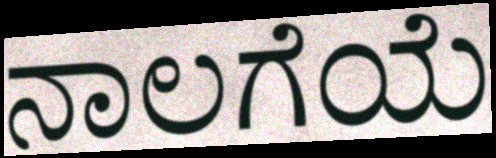
ನಾಲಗೆಯೆ